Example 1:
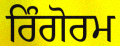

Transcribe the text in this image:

ਰਿੰਗੋਰਮ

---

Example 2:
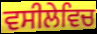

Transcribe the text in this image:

ਵਸੀਲੇਵਿਚ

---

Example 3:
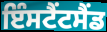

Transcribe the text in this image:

ਇੰਸਟੈਂਟਸੈਂਡ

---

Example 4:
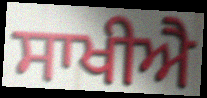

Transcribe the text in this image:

ਸਾਖੀਐ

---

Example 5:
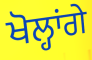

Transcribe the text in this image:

ਖੋਲ੍ਹਾਂਗੇ